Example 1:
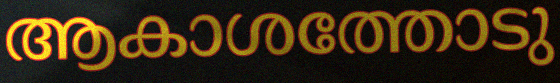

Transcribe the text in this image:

ആകാശത്തോടു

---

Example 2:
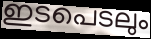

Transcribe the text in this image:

ഇടപെടലും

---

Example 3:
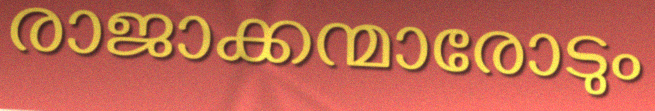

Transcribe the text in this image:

രാജാക്കന്മാരോടും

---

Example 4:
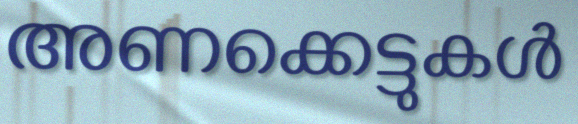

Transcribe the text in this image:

അണക്കെട്ടുകൾ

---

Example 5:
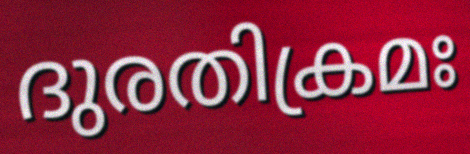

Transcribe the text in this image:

ദുരതിക്രമഃ